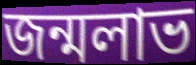
জন্মলাভ